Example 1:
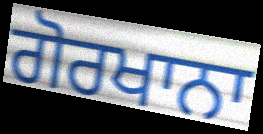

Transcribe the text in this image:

ਗੋਰਖਾਨਾ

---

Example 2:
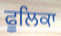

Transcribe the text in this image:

ਫੂਲਿਕਾ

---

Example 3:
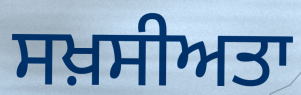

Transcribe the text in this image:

ਸਖ਼ਸੀਅਤਾ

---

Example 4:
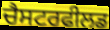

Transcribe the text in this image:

ਚੈਸਟਰਫੀਲਡ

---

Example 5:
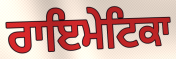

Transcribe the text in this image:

ਰਾਇਮੇਟਿਕਾ